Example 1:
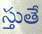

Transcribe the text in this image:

స్తుతే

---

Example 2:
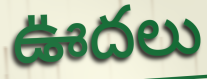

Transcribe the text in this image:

ఊదలు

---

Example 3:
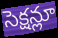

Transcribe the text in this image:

సెక్షన్లూ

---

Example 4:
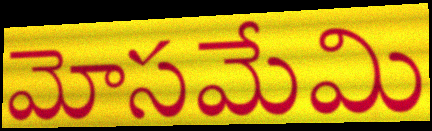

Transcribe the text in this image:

మోసమేమి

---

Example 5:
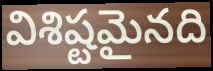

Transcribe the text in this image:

విశిష్టమైనది